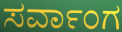
ಸರ್ವಾಂಗ